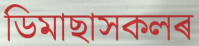
ডিমাছাসকলৰ